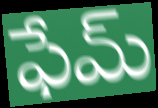
ఫేమ్